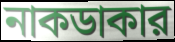
নাকডাকার